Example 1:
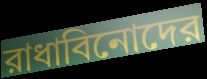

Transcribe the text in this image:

রাধাবিনোদের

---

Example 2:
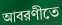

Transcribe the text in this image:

আবরণীতে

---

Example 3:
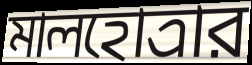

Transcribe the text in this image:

মালহোত্রার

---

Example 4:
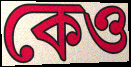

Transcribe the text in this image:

কেও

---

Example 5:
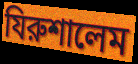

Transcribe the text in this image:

যিরুশালেম